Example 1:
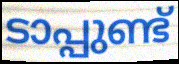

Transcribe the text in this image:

ടാപ്പുണ്ട്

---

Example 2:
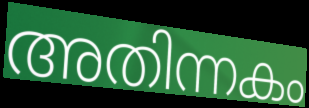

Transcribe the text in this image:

അതിന്നകം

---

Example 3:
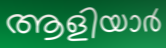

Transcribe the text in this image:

ആളിയാർ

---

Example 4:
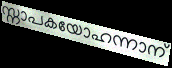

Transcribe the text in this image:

സ്നാപകയോഹന്നാന്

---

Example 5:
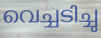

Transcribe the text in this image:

വെച്ചടിച്ചു